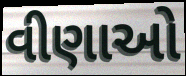
વીણાઓ